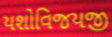
યશોવિજયજી